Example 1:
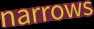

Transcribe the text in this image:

narrows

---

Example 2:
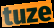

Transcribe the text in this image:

tuze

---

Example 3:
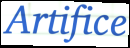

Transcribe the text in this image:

Artifice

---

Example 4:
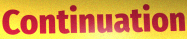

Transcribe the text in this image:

Continuation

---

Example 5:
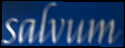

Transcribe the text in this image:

salvum